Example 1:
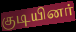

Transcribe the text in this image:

குடியினர்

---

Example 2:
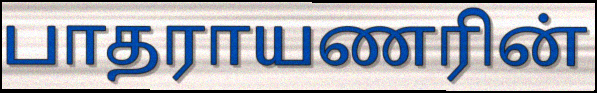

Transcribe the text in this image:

பாதராயணரின்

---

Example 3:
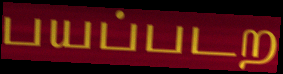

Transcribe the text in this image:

பயப்படற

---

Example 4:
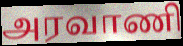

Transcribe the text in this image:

அரவாணி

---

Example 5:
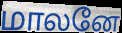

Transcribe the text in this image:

மாலனே